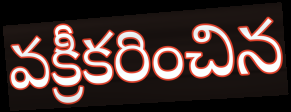
వక్రీకరించిన